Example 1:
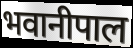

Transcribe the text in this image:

भवानीपाल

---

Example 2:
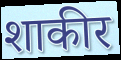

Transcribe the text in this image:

शाकीर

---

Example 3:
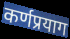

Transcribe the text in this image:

कर्णप्रयाग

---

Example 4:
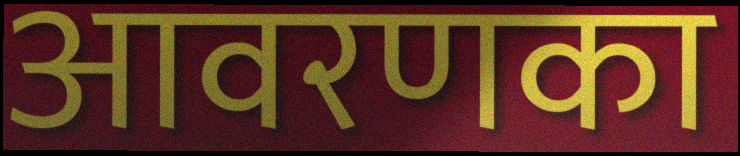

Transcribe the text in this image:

आवरणका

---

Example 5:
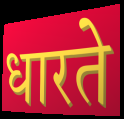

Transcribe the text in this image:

धारते